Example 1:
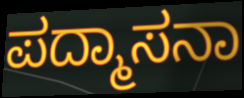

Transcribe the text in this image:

ಪದ್ಮಾಸನಾ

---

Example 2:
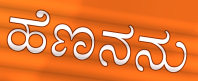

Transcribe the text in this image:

ಹೆಣನನು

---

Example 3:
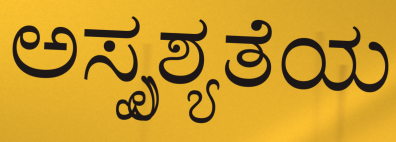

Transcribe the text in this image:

ಅಸ್ಪೃಶ್ಯತೆಯ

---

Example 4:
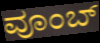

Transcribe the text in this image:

ವೂಂಬ್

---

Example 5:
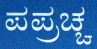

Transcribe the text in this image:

ಪಪ್ರಚ್ಚ